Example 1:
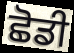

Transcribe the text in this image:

ਛੋਡੀ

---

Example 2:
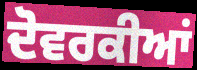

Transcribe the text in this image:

ਦੋਵਰਕੀਆਂ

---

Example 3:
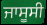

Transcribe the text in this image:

ਜਾਸੂਸੀ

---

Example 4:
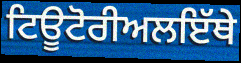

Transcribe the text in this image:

ਟਿਊਟੋਰੀਅਲਇੱਥੇ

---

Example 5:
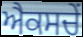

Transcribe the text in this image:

ਐਕਸਚੇਂ